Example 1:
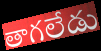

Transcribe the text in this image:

తాగలేడు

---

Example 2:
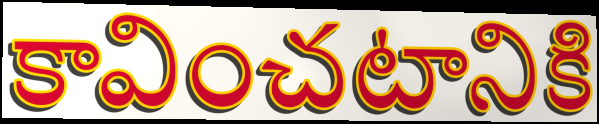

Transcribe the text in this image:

కావించటానికి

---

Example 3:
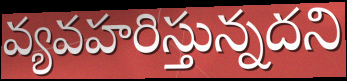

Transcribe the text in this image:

వ్యవహరిస్తున్నదని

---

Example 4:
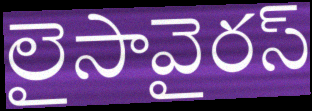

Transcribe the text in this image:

లైసావైరస్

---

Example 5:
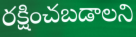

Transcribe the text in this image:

రక్షించబడాలని